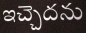
ఇచ్చెదను